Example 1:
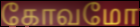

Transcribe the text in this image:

கோவமோ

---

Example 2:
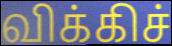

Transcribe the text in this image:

விக்கிச்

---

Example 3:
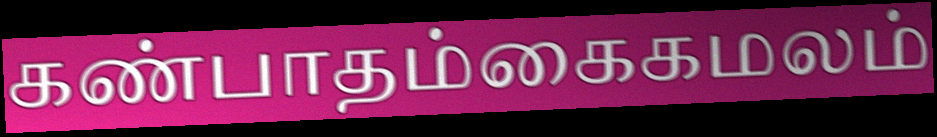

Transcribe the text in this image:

கண்பாதம்கைகமலம்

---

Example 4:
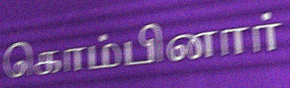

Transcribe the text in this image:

கொம்பினார்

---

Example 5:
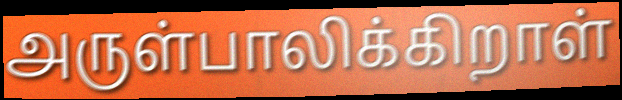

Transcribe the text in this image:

அருள்பாலிக்கிறாள்